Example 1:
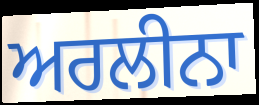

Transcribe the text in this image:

ਅਰਲੀਨਾ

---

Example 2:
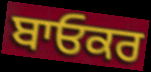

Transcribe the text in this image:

ਬਾਓਕਰ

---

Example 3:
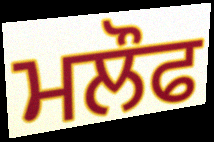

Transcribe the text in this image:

ਮਲੌਫ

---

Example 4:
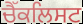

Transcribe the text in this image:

ਚੈੱਕਲਿਸਟ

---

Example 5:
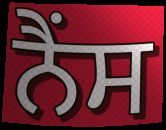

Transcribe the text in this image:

ਨੈਂਸ